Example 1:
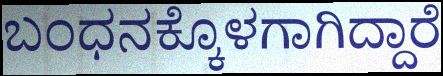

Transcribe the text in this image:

ಬಂಧನಕ್ಕೊಳಗಾಗಿದ್ದಾರೆ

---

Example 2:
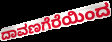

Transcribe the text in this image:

ದಾವಣಗೆರೆಯಿಂದ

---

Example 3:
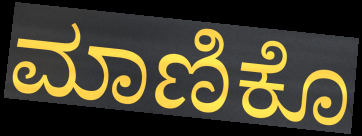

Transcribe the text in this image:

ಮಾಣಿಕೊ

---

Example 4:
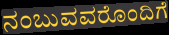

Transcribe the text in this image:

ನಂಬುವವರೊಂದಿಗೆ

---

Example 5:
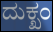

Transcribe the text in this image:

ದುಕ್ಖಂ